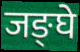
जङ्घे